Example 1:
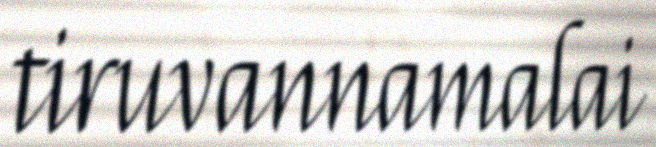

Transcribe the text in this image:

tiruvannamalai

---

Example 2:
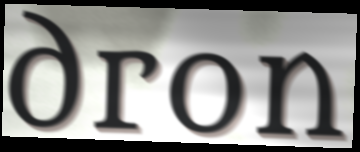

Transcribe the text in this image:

dron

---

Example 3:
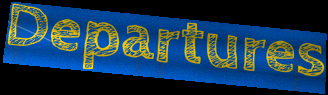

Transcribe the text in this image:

Departures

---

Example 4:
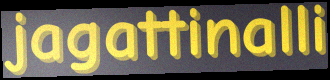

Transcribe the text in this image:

jagattinalli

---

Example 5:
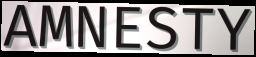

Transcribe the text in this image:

AMNESTY